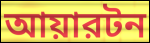
আয়ারটন